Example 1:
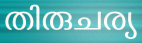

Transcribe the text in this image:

തിരുചര്യ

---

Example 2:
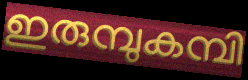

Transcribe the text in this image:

ഇരുമ്പുകമ്പി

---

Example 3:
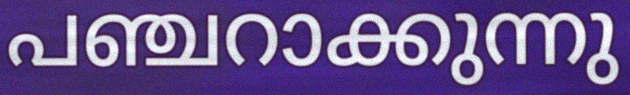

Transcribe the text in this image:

പഞ്ചറാക്കുന്നു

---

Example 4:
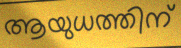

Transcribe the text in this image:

ആയുധത്തിന്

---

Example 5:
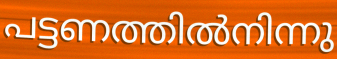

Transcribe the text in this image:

പട്ടണത്തിൽനിന്നു